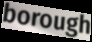
borough